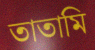
তাতামি